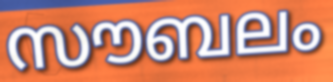
സൗബലം